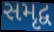
સમૃદ્વ